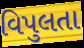
વિપુલતા